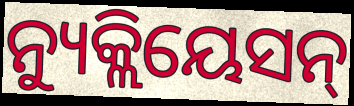
ନ୍ୟୁକ୍ଲିୟେସନ୍